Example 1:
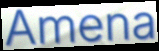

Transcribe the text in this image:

Amena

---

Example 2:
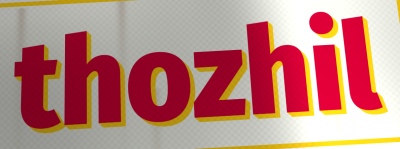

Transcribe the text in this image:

thozhil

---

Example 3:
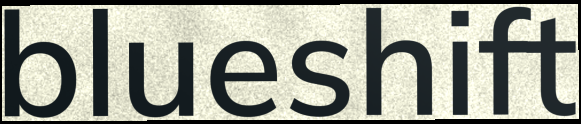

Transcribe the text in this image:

blueshift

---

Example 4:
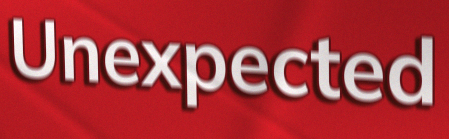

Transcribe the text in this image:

Unexpected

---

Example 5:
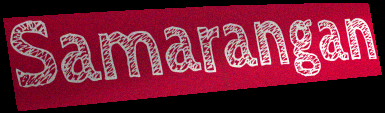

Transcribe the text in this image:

Samarangan